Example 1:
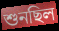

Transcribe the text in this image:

শুনছিল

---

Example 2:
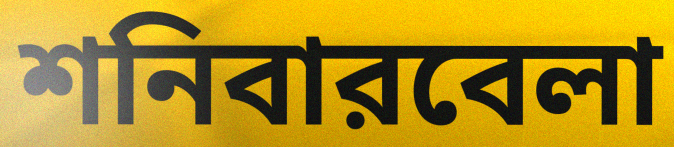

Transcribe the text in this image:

শনিবারবেলা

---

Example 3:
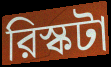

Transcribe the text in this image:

রিস্কটা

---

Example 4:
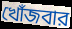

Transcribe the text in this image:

খোঁজবার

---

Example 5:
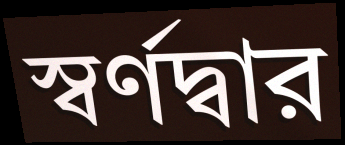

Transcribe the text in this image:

স্বর্ণদ্বার